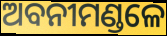
ଅବନୀମଣ୍ଡଳେ